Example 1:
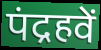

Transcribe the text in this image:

पंद्रहवें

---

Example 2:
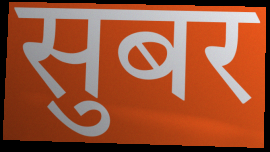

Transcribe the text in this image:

सुबर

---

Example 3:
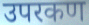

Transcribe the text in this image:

उपरकण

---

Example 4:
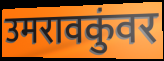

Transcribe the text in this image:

उमरावकुंवर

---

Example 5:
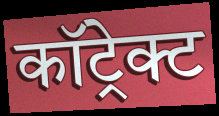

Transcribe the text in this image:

कॉट्रेक्ट